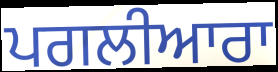
ਪਗਲੀਆਰਾ